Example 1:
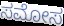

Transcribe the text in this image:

ಸಮೋಸ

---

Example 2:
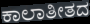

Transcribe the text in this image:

ಕಾಲಾತೀತದ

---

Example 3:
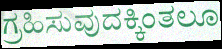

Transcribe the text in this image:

ಗ್ರಹಿಸುವುದಕ್ಕಿಂತಲೂ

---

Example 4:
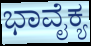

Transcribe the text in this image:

ಭಾವೈಕ್ಯ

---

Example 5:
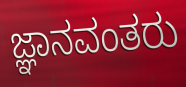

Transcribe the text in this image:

ಜ್ಞಾನವಂತರು